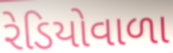
રેડિયોવાળા